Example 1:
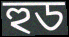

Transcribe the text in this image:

হুড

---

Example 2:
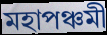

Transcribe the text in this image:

মহাপঞ্চমী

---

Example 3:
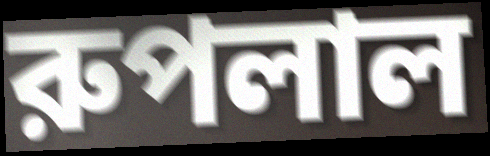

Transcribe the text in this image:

রুপলাল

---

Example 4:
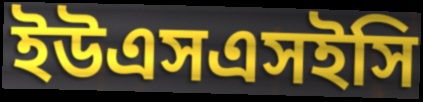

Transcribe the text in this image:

ইউএসএসইসি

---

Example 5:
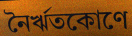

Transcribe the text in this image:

নৈর্ঋতকোণে